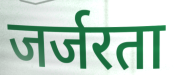
जर्जरता